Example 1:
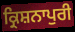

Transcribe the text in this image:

ਕ੍ਰਿਸ਼ਨਾਪੁਰੀ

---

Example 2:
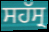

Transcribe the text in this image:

ਸਹੱਸ੍ਰ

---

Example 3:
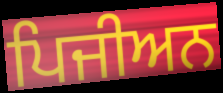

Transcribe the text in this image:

ਪਿਜੀਅਨ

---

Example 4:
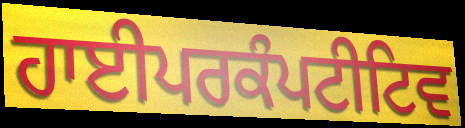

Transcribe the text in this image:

ਹਾਈਪਰਕੰਪਟੀਟਿਵ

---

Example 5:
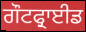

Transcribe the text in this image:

ਗੌਟਫ੍ਰਾਈਡ